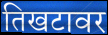
तिखटावर